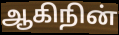
ஆகிநின்